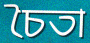
চৈতা